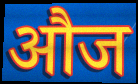
औज